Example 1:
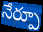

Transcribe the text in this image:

నేర్పూ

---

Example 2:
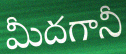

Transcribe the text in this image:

మీదగానీ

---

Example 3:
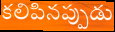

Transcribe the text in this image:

కలిపినప్పుడు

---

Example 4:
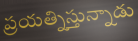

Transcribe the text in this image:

ప్రయత్నిస్తున్నాడు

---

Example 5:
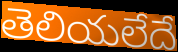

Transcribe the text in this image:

తెలియలేదే